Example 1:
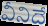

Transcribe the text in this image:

వీనిదే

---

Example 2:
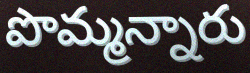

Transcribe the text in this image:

పొమ్మన్నారు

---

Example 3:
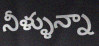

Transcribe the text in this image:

నీళ్ళున్నా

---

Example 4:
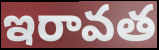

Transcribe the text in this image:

ఇరావత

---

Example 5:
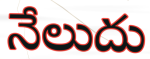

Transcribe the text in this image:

నేలుదు